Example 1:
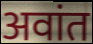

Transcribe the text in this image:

अवांत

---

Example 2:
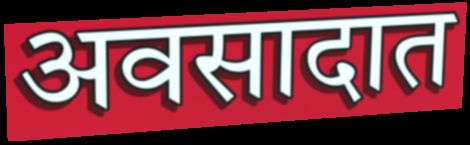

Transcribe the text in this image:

अवसादात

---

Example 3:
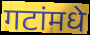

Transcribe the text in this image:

गटांमधे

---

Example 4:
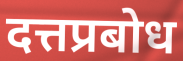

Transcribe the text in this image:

दत्तप्रबोध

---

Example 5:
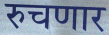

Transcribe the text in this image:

रुचणार